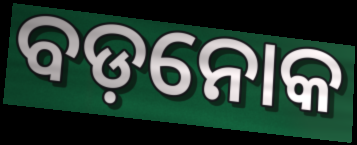
ବଡ଼ନୋକ